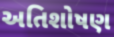
અતિશોષણ